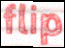
flip